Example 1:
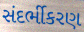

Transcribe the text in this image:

સંદર્ભીકરણ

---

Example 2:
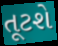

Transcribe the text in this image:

તૂટશે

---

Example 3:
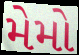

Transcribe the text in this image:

મેમો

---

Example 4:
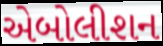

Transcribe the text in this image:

એબોલીશન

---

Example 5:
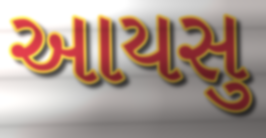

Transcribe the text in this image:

આયસુ